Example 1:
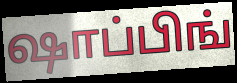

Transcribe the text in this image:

ஷாப்பிங்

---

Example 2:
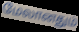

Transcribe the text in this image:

மேலானதும்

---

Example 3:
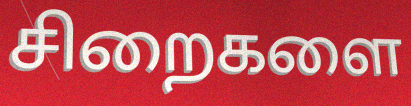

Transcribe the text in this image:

சிறைகளை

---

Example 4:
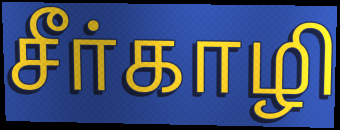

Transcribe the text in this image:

சீர்காழி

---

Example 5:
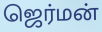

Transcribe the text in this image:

ஜெர்மன்